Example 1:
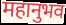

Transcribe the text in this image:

महानुभव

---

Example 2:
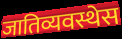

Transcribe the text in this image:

जातिव्यवस्थेस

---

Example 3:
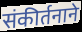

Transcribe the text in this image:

संकीर्तनाने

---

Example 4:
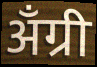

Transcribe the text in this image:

अँग्री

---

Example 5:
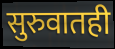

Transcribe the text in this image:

सुरुवातही